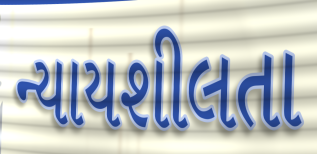
ન્યાયશીલતા